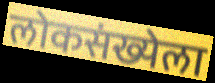
लोकसंख्येला